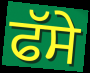
ਫੱਸੇ